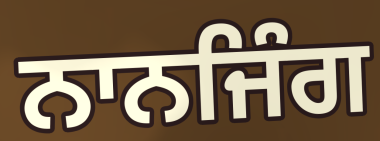
ਨਾਨਜਿੰਗ